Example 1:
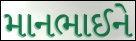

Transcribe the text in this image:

માનભાઈને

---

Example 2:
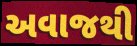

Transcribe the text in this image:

અવાજથી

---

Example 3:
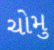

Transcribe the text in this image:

ચોમુ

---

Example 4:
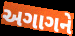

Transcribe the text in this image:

અગાગને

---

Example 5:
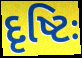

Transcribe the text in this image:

દૃષ્ટિઃ